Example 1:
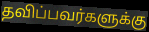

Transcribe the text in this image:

தவிப்பவர்களுக்கு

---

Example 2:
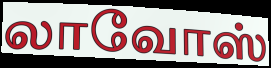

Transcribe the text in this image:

லாவோஸ்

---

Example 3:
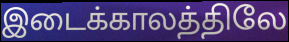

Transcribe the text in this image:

இடைக்காலத்திலே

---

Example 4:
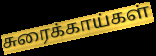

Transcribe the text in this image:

சுரைக்காய்கள்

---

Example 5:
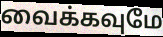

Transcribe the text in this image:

வைக்கவுமே